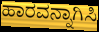
ಹಾರವನ್ನಾಗಿಸಿ